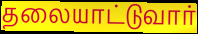
தலையாட்டுவார்